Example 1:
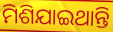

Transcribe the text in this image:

ମିଶିଯାଇଥାନ୍ତି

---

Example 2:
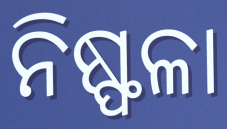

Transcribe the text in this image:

ନିଷ୍ଫଳା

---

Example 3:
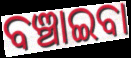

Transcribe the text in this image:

ବଞ୍ଚାଇବା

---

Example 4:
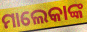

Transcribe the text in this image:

ମାଲେକାଙ୍କ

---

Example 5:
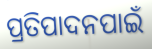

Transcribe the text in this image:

ପ୍ରତିପାଦନପାଇଁ